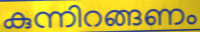
കുന്നിറങ്ങണം